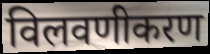
विलवणीकरण